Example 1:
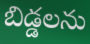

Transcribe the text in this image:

బిడ్డలను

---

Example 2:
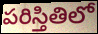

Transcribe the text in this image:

పరిస్తితిలో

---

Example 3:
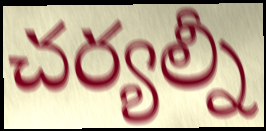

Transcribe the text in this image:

చర్యల్నీ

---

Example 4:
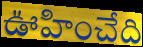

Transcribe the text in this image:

ఊహించేది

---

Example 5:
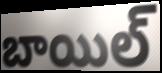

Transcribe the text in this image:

బాయిల్